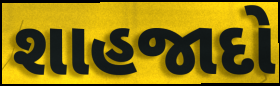
શાહજાદો